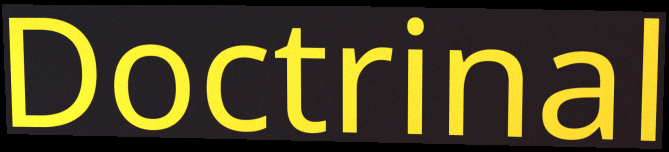
Doctrinal